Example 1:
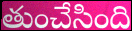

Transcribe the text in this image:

తుంచేసింది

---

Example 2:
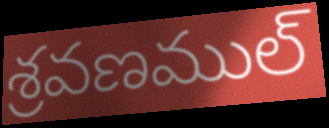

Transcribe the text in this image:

శ్రవణముల్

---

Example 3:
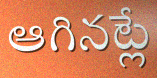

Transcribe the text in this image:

ఆగినట్లే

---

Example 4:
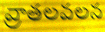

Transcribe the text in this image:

వ్రాతలవలన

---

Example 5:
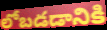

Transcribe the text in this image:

లోబడడానికి